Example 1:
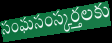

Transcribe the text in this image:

సంఘసంస్కర్తలకు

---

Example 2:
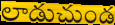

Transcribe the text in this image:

లాడుచుండ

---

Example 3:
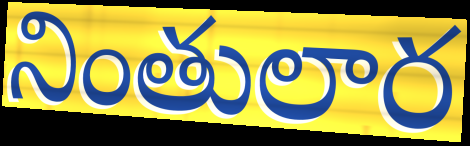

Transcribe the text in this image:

నింతులార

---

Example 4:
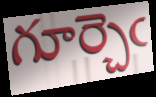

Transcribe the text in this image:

గూర్చెఁ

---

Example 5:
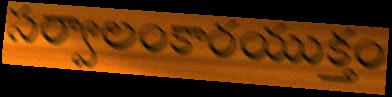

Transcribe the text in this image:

సర్వాలంకారయుక్తం